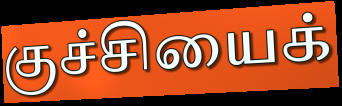
குச்சியைக்